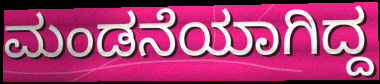
ಮಂಡನೆಯಾಗಿದ್ದ